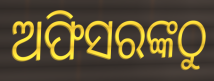
ଅଫିସରଙ୍କଠୁ